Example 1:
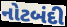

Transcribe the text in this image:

નોટબંદી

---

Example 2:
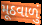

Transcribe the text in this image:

મૂઠવાળું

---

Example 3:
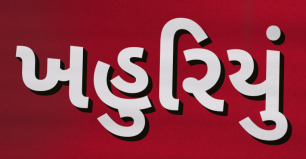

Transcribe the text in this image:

ખહુરિયું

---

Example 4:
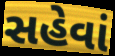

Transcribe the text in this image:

સહેવાં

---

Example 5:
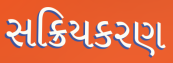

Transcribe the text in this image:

સક્રિયકરણ